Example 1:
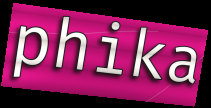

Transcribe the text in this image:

phika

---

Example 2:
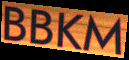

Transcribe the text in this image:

BBKM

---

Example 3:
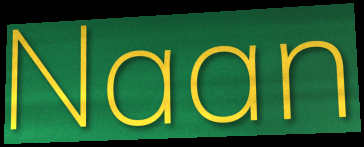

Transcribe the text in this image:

Naan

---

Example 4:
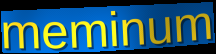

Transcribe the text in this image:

meminum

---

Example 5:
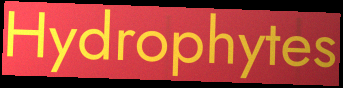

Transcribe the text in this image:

Hydrophytes